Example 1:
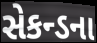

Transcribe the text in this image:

સેકન્ડના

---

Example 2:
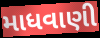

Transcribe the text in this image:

માધવાણી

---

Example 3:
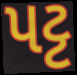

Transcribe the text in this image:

પટ્ટ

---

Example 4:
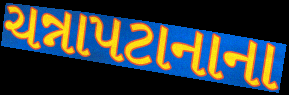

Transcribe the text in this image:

ચન્નાપટાનાના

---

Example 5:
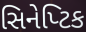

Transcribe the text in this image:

સિનેપ્ટિક